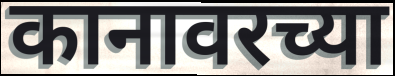
कानावरच्या